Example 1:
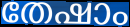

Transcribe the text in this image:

തേഷാം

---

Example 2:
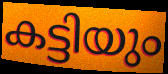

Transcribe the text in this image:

കട്ടിയും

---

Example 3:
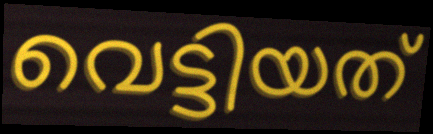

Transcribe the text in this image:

വെട്ടിയത്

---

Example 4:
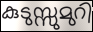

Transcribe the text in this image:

കുടുസ്സുമുറി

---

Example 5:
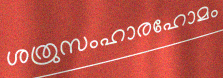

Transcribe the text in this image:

ശത്രുസംഹാരഹോമം